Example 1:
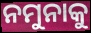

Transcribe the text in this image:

ନମୁନାକୁ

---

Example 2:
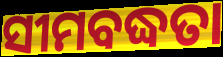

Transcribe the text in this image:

ସୀମବଦ୍ଧତା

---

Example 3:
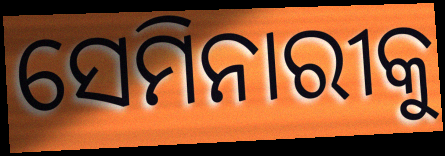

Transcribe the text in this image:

ସେମିନାରୀକୁ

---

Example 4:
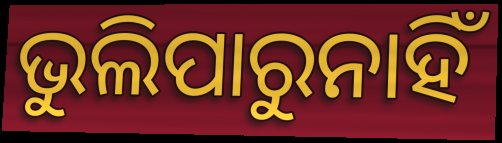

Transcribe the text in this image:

ଭୁଲିପାରୁନାହିଁ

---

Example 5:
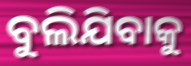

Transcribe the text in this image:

ବୁଲିଯିବାକୁ